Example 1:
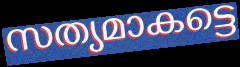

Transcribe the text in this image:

സത്യമാകട്ടെ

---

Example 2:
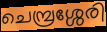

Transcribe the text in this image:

ചെമ്പ്രശ്ശേരി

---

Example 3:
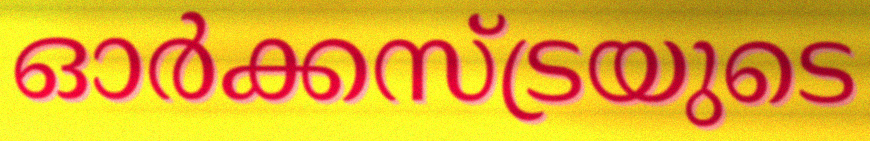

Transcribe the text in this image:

ഓർക്കസ്ട്രയുടെ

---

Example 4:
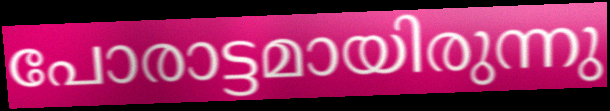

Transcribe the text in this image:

പോരാട്ടമായിരുന്നു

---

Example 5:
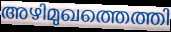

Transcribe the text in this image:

അഴിമുഖത്തെത്തി